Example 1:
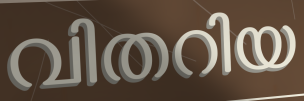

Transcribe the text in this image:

വിതറിയ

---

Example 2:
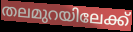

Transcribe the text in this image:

തലമുറയിലേക്ക്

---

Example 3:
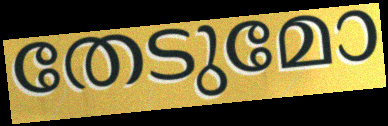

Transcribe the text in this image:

തേടുമോ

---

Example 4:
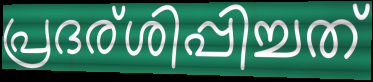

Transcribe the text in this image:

പ്രദര്ശിപ്പിച്ചത്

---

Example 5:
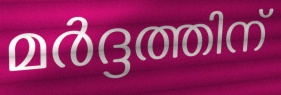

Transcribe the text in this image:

മർദ്ദത്തിന്